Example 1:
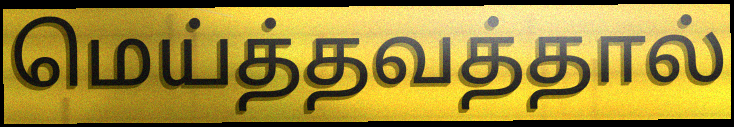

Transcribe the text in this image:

மெய்த்தவத்தால்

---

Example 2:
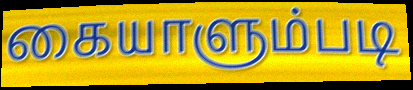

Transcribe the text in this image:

கையாளும்படி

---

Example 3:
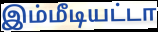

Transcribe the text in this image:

இம்மீடியட்டா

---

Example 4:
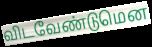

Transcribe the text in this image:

விடவேண்டுமென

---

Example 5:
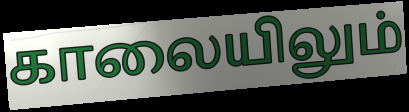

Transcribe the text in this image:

காலையிலும்